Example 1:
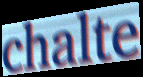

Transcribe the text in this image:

chalte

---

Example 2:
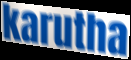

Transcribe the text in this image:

karutha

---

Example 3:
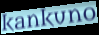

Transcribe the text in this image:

kankuno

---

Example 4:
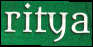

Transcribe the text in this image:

ritya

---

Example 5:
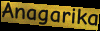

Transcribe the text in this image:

Anagarika